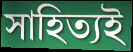
সাহিত্যই